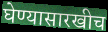
घेण्यासारखीच